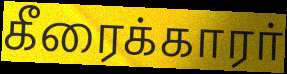
கீரைக்காரர்